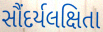
સૌંદર્યલક્ષિતા